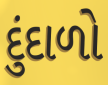
દુંદાળો